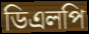
ডিএলপি